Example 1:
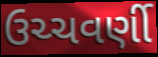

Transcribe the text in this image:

ઉચ્ચવર્ણી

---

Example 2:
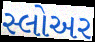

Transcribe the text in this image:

સ્લોઅર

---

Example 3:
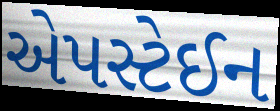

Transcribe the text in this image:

એપસ્ટેઈન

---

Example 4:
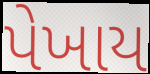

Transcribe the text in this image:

પેખાય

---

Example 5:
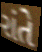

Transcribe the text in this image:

રાંતે